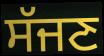
ਸੱਜਣ